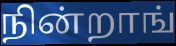
நின்றாங்